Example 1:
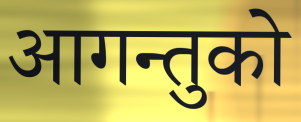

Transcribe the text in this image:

आगन्तुको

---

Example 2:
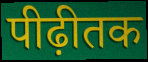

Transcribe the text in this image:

पीढ़ीतक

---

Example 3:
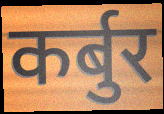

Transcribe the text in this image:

कर्बुर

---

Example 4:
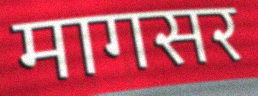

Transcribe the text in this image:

मागसर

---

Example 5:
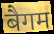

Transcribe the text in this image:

बैगम